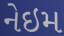
નેઇમ